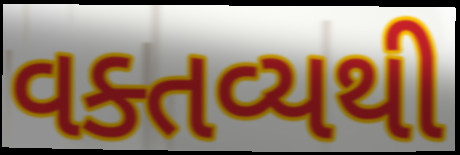
વક્તવ્યથી